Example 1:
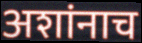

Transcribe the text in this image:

अशांनाच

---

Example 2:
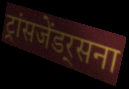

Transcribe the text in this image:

ट्रांसजेंडर्सना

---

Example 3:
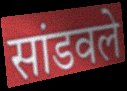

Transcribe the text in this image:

सांडवले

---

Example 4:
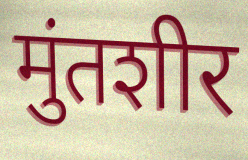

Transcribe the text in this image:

मुंतशीर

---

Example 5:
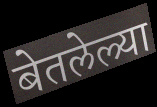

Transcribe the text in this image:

बेतलेल्या